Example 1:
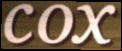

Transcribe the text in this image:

cox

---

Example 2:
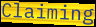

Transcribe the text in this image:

Claiming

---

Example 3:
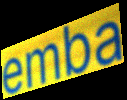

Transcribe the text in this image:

emba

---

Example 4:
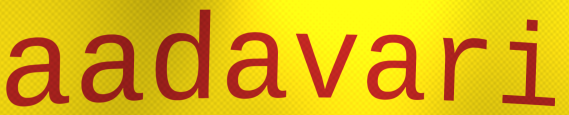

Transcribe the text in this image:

aadavari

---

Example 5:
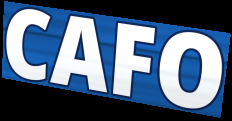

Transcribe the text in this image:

CAFO